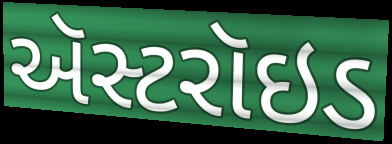
ઍસ્ટરૉઇડ